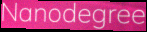
Nanodegree